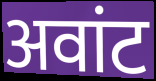
अवांट